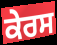
ਕੇਰਸ